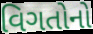
વિગતોનો